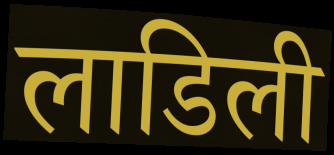
लाडिली